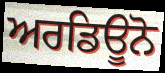
ਅਰਡਿਊਨੋ